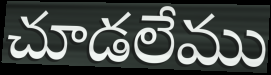
చూడలేము